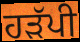
ਹੜੱਪੀ